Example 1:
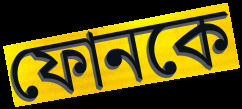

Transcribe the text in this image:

ফোনকে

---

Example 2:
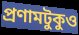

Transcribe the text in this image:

প্রণামটুকুও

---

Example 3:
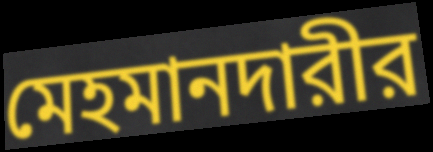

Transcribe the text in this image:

মেহমানদারীর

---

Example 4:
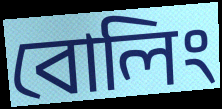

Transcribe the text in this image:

বোলিং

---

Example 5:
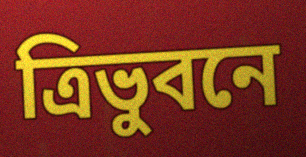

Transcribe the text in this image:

ত্রিভুবনে